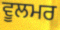
ਵੂਲਮਰ